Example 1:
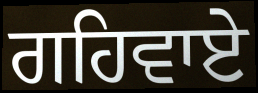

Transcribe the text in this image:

ਗਹਿਵਾਏ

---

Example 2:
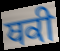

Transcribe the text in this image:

ਥਕੀ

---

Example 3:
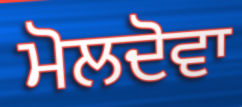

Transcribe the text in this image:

ਮੋਲਦੋਵਾ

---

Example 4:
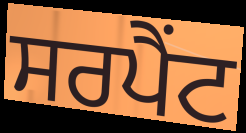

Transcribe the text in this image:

ਸਰਪੈਂਟ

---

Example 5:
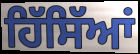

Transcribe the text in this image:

ਹਿੱਸਿੱਆਂ